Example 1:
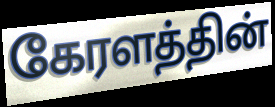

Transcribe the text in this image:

கேரளத்தின்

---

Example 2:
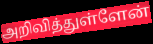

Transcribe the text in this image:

அறிவித்துள்ளேன்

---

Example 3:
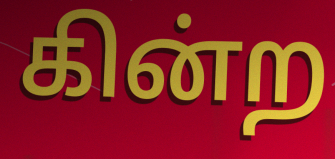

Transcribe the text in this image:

கின்ற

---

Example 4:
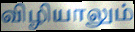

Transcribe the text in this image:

விழியாலும்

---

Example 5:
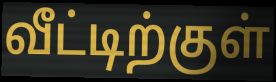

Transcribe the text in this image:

வீட்டிற்குள்